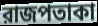
রাজপতাকা